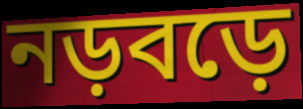
নড়বড়ে